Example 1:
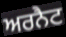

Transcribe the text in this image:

ਅਰਨੈਟ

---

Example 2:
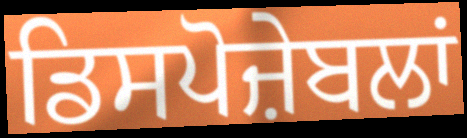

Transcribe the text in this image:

ਡਿਸਪੋਜ਼ੇਬਲਾਂ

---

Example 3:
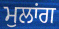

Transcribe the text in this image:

ਮੁਲਾਂਗ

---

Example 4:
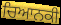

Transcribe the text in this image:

ਚਿਆਨਕੀ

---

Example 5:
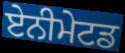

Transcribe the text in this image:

ਏਨੀਮੇਟਡ